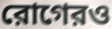
রোগেরও